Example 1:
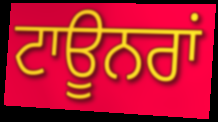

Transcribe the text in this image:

ਟਾਊਨਰਾਂ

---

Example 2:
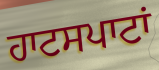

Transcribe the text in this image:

ਹਾਟਸਪਾਟਾਂ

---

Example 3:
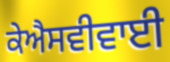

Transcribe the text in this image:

ਕੇਐਸਵੀਵਾਈ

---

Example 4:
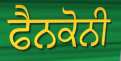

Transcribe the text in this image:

ਫੈਨਕੋਨੀ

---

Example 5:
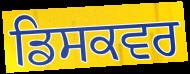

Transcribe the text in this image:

ਡਿਸਕਵਰ